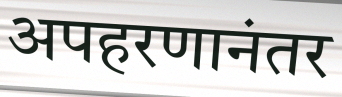
अपहरणानंतर